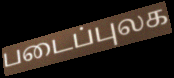
படைப்புலக